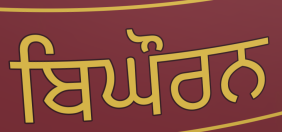
ਬਿਘੌਰਨ